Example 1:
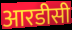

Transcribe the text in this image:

आरडीसी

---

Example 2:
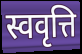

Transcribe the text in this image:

स्ववृत्ति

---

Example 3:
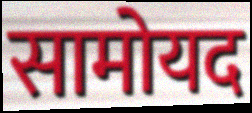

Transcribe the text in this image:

सामोयद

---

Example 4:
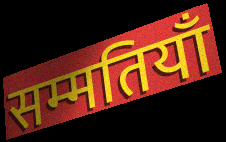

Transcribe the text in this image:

सम्मतियाँ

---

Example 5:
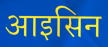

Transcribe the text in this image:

आइसिन